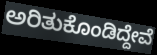
ಅರಿತುಕೊಂಡಿದ್ದೇವೆ